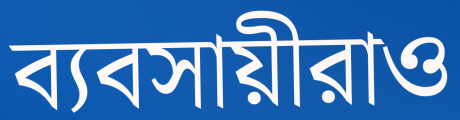
ব্যবসায়ীরাও